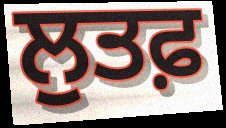
ਲੁਤਫ਼